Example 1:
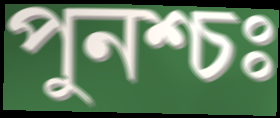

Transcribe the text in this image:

পুনশ্চঃ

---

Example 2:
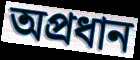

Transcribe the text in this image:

অপ্রধান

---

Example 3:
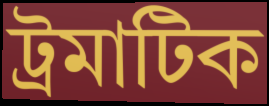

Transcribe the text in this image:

ট্রমাটিক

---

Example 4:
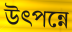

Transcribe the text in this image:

উৎপন্নে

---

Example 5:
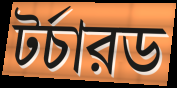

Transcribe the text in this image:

টর্চারড